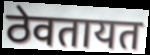
ठेवतायत